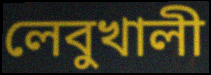
লেবুখালী